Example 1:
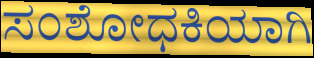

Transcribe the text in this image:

ಸಂಶೋಧಕಿಯಾಗಿ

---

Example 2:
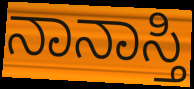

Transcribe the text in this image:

ನಾನಾಸ್ತಿ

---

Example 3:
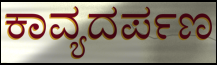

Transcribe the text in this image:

ಕಾವ್ಯದರ್ಪಣ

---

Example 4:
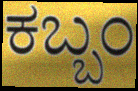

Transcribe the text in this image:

ಕಬ್ಬಂ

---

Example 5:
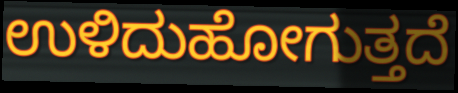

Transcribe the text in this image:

ಉಳಿದುಹೋಗುತ್ತದೆ